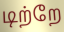
டிற்றே